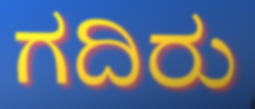
ಗದಿರು